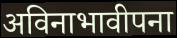
अविनाभावीपना